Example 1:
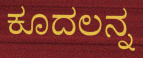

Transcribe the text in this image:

ಕೂದಲನ್ನ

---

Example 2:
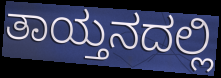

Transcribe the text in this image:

ತಾಯ್ತನದಲ್ಲಿ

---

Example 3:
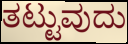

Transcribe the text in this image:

ತಟ್ಟುವುದು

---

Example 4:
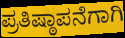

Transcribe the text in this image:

ಪ್ರತಿಷ್ಠಾಪನೆಗಾಗಿ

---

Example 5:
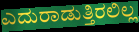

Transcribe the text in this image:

ಎದುರಾಡುತ್ತಿರಲಿಲ್ಲ